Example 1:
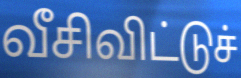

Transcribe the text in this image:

வீசிவிட்டுச்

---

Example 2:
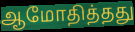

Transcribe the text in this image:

ஆமோதித்தது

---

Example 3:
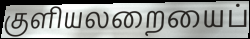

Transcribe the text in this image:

குளியலறையைப்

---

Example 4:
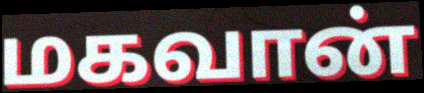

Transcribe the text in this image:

மகவான்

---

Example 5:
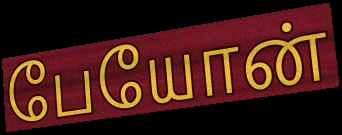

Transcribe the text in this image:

பேயோன்